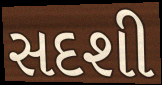
સદશી